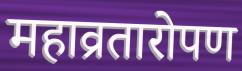
महाव्रतारोपण